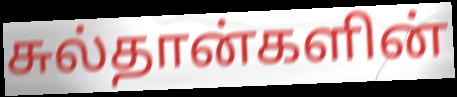
சுல்தான்களின்